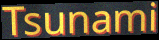
Tsunami